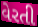
વેરતી